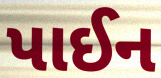
પાઈન